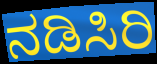
ನಡಿಸಿರಿ